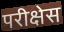
परीक्षेस